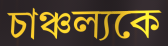
চাঞ্চল্যকে